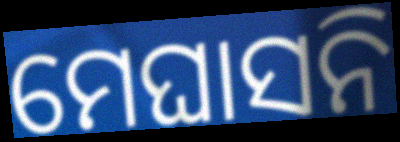
ମେଘାସନି